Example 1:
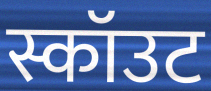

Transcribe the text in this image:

स्कॉउट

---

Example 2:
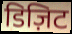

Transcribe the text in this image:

डिज़िट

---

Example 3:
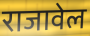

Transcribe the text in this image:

राजावेल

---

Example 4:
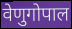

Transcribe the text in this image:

वेणुगोपाल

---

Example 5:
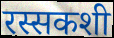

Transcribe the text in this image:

रस्सकशी